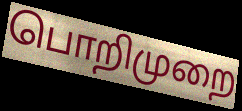
பொறிமுறை